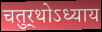
चतुर्थोऽध्याय